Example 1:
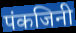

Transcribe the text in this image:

पंकजिनी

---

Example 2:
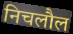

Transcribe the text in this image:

निचलौल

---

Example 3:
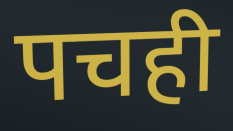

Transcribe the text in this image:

पचही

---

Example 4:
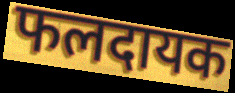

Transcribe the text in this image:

फलदायक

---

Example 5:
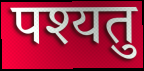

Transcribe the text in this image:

पश्यतु